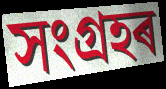
সংগ্ৰহৰ